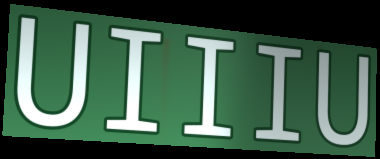
UIIIU